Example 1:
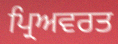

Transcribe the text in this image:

ਪ੍ਰਿਅਵਰਤ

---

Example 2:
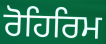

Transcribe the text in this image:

ਰੋਹਿਰਿਮ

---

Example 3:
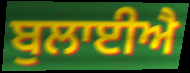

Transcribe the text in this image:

ਬੁਲਾਈਐ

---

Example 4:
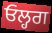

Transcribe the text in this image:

ਓਲ੍ਹਗ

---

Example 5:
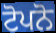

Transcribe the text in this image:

ਟੋਪਨੋ